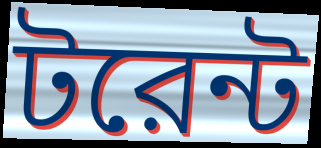
টরেন্ট